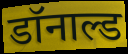
डॉनाल्ड